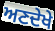
ਅਣਦੇਖੇ